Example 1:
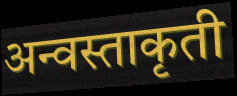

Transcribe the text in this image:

अन्वस्ताकृती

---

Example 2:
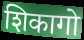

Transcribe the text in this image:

शिकागो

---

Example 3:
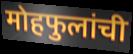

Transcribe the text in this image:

मोहफुलांची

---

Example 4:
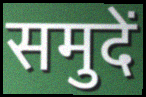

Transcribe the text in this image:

समुदें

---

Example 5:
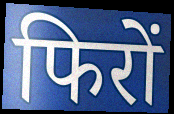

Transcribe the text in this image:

फिरों